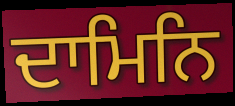
ਦਾਮਿਨਿ